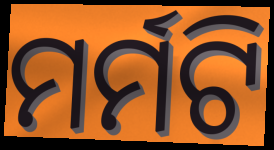
ମର୍ମଟି